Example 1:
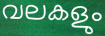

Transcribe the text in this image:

വലകളും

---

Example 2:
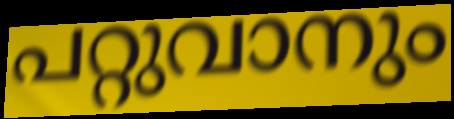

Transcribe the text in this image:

പറ്റുവാനും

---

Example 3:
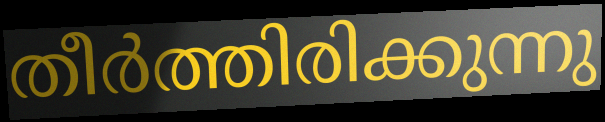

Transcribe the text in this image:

തീർത്തിരിക്കുന്നു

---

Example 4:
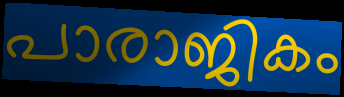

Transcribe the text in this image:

പാരാജികം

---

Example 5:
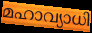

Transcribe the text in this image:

മഹാവ്യാധി